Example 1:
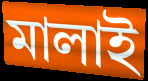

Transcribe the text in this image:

মালাই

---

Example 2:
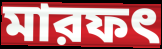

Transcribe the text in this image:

মারফৎ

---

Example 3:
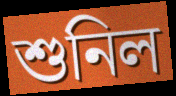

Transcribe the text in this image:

শুনিল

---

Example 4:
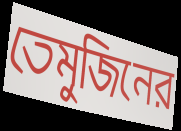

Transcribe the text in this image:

তেমুজিনের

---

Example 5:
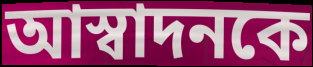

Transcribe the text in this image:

আস্বাদনকে